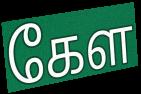
கேள